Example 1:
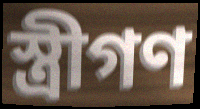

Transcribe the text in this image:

স্ত্রীগণ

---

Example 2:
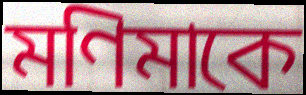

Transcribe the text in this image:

মণিমাকে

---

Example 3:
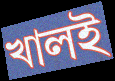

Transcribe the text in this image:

খালই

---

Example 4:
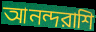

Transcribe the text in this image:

আনন্দরাশি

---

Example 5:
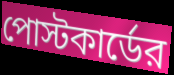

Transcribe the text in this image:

পোস্টকার্ডের